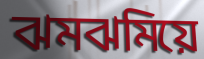
ঝমঝমিয়ে